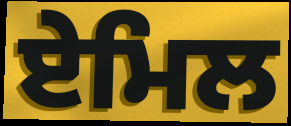
ਏਮਿਲ